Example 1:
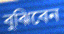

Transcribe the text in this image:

বুঝিবেন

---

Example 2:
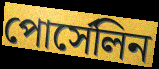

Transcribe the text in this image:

পোর্সেলিন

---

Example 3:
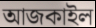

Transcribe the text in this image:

আজকাইল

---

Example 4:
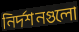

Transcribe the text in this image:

নির্দশনগুলো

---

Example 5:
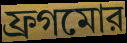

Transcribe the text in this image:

ফ্রগমোর